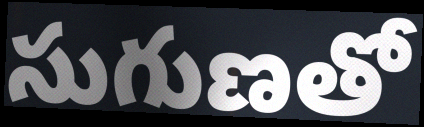
సుగుణతో